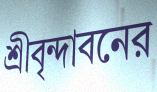
শ্রীবৃন্দাবনের